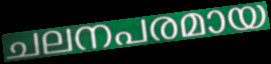
ചലനപരമായ